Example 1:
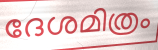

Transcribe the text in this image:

ദേശമിത്രം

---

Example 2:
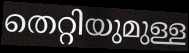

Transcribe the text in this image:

തെറ്റിയുമുള്ള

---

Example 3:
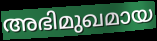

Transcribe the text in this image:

അഭിമുഖമായ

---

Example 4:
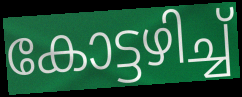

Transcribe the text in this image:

കോട്ടഴിച്ച്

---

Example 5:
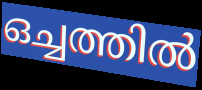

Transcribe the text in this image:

ഒച്ചത്തിൽ